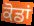
ਕੋਡਾਂ